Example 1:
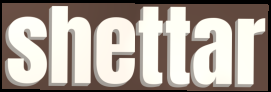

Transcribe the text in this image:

shettar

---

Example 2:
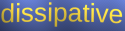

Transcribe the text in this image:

dissipative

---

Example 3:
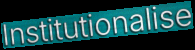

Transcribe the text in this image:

Institutionalise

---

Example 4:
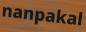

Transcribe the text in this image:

nanpakal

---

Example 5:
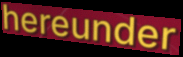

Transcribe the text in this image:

hereunder